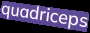
quadriceps